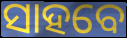
ସାହବେ